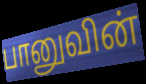
பானுவின்